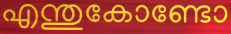
എന്തുകോണ്ടോ